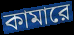
কামারে